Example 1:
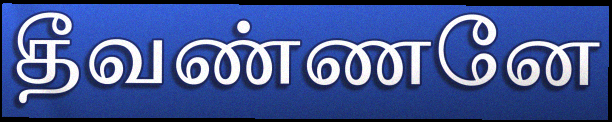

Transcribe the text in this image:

தீவண்ணனே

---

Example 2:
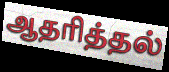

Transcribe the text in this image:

ஆதரித்தல்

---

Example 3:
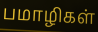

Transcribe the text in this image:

பமாழிகள்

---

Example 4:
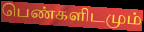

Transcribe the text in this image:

பெண்களிடமும்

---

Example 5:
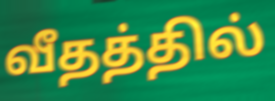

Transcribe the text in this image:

வீதத்தில்